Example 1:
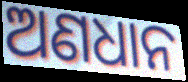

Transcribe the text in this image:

ଅଣଧାନ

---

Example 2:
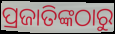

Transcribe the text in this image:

ପ୍ରଜାତିଙ୍କଠାରୁ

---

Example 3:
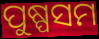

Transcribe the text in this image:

ପୁଷ୍ପସମ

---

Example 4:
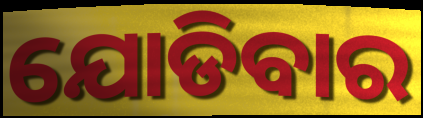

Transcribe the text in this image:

ଯୋଡିବାର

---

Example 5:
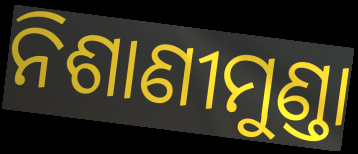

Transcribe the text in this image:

ନିଶାଣୀମୁଣ୍ଡା